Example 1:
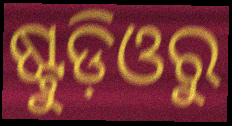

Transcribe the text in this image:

ଷ୍ଟୁଡ଼ିଓରୁ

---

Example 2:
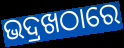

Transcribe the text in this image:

ଭଦ୍ରଖଠାରେ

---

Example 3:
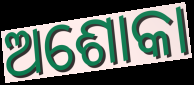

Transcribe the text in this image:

ଅଶୋକା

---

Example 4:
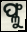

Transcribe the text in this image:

ଫ୍ଳୁ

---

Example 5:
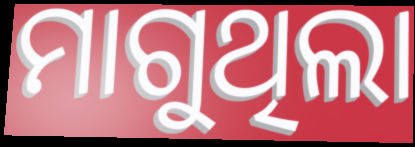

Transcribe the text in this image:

ମାଗୁଥିଲା